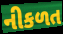
નીકળત